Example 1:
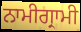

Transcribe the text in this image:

ਨਾਮੀਗ੍ਰਾਮੀ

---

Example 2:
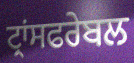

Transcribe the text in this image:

ਟ੍ਰਾਂਸਫਰੇਬਲ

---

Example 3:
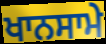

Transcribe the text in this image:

ਖਾਨਸਾਮੇ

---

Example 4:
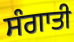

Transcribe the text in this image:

ਸੰਗਾਤੀ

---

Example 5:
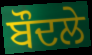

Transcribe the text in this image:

ਬੌਦਲੇ